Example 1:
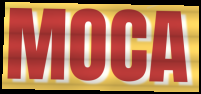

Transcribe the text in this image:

MOCA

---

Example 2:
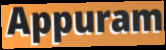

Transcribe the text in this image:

Appuram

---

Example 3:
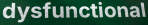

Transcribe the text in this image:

dysfunctional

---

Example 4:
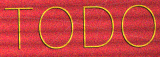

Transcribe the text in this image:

TODO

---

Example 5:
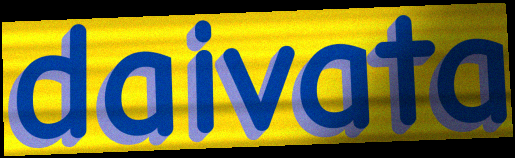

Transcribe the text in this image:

daivata